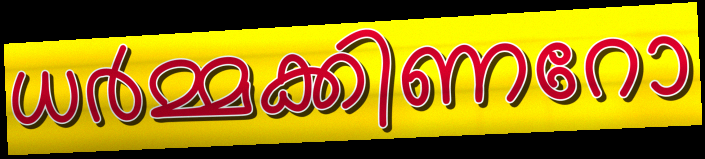
ധർമ്മക്കിണറോ